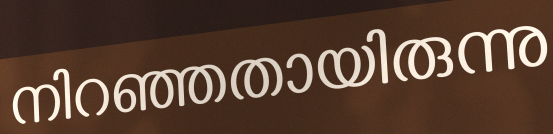
നിറഞ്ഞതായിരുന്നു